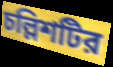
চল্লিশটির